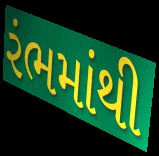
રંભમાંથી